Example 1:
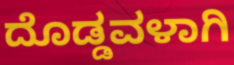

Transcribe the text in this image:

ದೊಡ್ಡವಳಾಗಿ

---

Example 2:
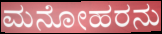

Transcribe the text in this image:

ಮನೋಹರನು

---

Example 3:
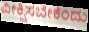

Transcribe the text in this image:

ವೀಕ್ಷಿಸಬೇಕೆಂದು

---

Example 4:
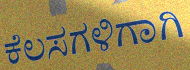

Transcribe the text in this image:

ಕೆಲಸಗಳಿಗಾಗಿ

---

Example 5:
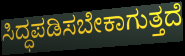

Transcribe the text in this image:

ಸಿದ್ಧಪಡಿಸಬೇಕಾಗುತ್ತದೆ